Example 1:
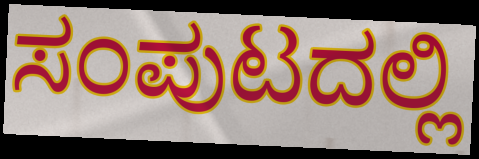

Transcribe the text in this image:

ಸಂಪುಟದಲ್ಲಿ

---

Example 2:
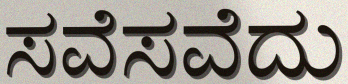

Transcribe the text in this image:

ಸವೆಸವೆದು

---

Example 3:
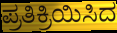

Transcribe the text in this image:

ಪ್ರತಿಕ್ರಿಯಿಸಿದ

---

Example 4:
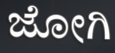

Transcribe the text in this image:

ಜೋಗಿ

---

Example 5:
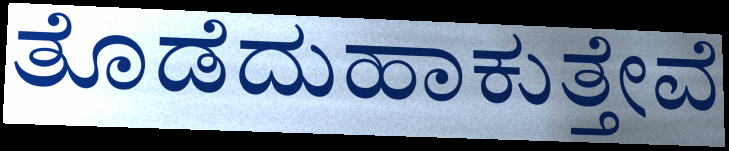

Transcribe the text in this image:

ತೊಡೆದುಹಾಕುತ್ತೇವೆ